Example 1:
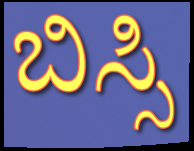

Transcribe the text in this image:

ಬಿಸ್ಸಿ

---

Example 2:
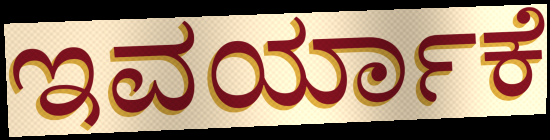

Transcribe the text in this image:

ಇವರ್ಯಾಕೆ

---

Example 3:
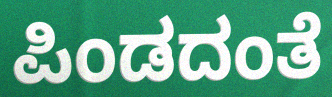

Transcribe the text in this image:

ಪಿಂಡದಂತೆ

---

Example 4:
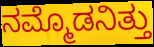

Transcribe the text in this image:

ನಮ್ಮೊಡನಿತ್ತು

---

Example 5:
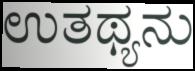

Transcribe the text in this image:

ಉತಥ್ಯನು